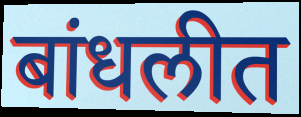
बांधलीत